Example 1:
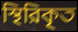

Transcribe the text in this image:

স্থিরিকৃত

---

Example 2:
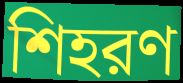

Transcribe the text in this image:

শিহরণ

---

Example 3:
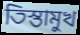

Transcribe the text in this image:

তিস্তামুখ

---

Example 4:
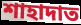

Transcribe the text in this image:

শাহাদাত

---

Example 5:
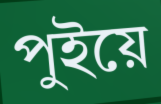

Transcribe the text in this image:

পুইয়ে